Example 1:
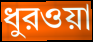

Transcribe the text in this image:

ধুরওয়া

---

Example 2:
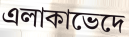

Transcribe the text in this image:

এলাকাভেদে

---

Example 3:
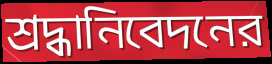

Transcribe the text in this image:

শ্রদ্ধানিবেদনের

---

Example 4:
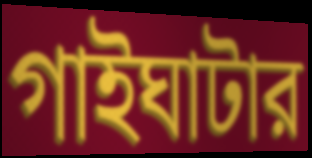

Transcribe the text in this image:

গাইঘাটার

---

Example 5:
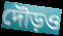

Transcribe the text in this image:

দৌড়ও